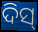
ଦିସ୍